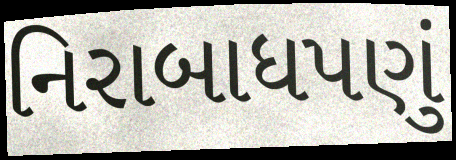
નિરાબાધપણું